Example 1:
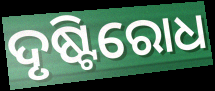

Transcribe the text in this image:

ଦୃଷ୍ଟିରୋଧ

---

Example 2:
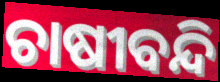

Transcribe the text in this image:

ଚାଷୀବନ୍ଦି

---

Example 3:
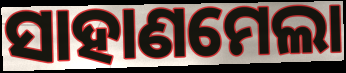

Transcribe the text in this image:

ସାହାଣମେଲା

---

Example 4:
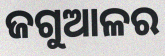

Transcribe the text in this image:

ଜଗୁଆଳର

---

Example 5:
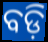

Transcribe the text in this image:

ବଡ଼ି